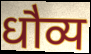
धौव्य